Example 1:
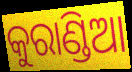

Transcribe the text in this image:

କୁରାଣ୍ଡିଆ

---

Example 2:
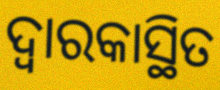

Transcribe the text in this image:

ଦ୍ୱାରକାସ୍ଥିତ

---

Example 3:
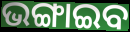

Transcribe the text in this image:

ଭଙ୍ଗାଇବ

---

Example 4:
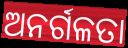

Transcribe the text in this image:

ଅନର୍ଗଳତା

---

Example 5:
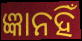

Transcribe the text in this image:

ଜ୍ଞାନହିଁ